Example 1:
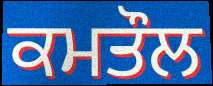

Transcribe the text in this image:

ਕਮਤੌਲ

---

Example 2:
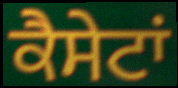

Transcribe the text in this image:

ਕੈਸੇਟਾਂ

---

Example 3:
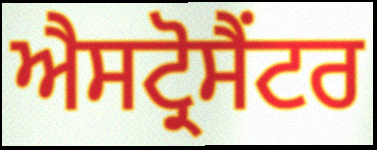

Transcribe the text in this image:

ਐਸਟ੍ਰੋਸੈਂਟਰ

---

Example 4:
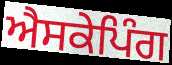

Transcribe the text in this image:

ਐਸਕੇਪਿੰਗ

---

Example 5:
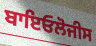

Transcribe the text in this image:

ਬਾਇਓਲੋਜੀਸ